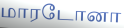
மாரடோனா